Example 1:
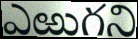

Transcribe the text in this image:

ఎఱుగని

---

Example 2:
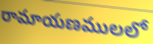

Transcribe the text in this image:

రామాయణములలో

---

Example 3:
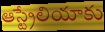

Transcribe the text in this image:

ఆస్ట్రేలియాకు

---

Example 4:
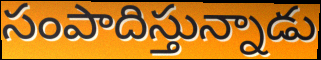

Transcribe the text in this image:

సంపాదిస్తున్నాడు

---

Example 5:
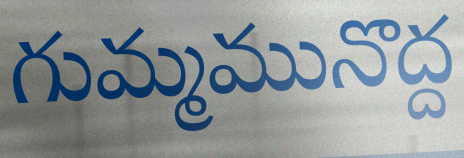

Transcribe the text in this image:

గుమ్మమునొద్ద